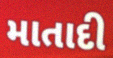
માતાદી